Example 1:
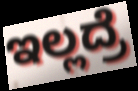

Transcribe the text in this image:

ಇಲ್ಲದ್ರೆ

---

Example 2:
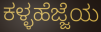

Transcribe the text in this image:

ಕಳ್ಳಹೆಜ್ಜೆಯ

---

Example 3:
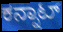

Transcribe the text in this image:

ಕನ್ನಾಟ್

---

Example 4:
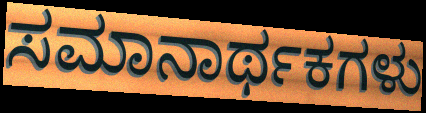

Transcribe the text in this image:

ಸಮಾನಾರ್ಥಕಗಳು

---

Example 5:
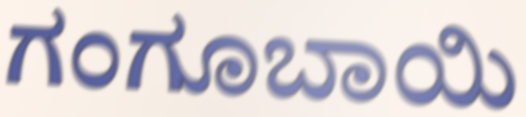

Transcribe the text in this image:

ಗಂಗೂಬಾಯಿ